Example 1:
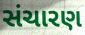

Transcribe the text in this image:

સંચારણ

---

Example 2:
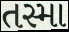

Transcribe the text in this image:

તસ્મા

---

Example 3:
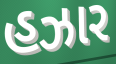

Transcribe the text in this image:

હઝાર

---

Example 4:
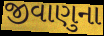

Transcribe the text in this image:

જીવાણુના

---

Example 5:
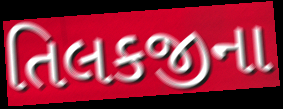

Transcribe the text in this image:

તિલકજીના